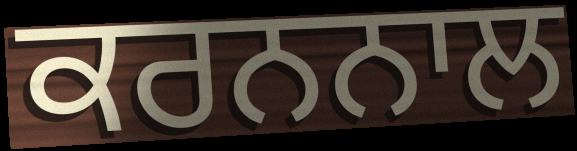
ਕਰਨਨਾਲ